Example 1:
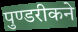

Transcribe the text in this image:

पुण्डरीकने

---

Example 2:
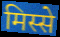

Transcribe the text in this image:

मिस्से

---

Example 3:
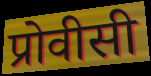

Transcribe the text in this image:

प्रोवीसी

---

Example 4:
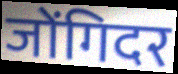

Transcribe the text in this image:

जोंगिदर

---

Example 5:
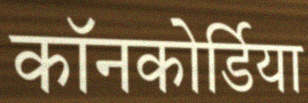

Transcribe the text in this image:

कॉनकोर्डिया